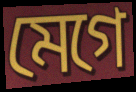
মেগে